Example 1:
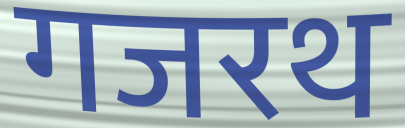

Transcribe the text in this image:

गजरथ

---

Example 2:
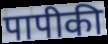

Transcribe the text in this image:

पापीकी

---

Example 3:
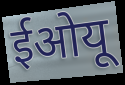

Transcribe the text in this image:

ईओयू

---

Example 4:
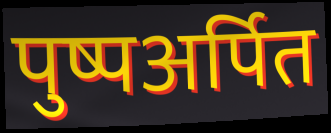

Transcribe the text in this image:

पुष्पअर्पित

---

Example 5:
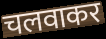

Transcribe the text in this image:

चलवाकर